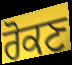
ਰੋਕਣ